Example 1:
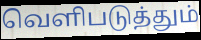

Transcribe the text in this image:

வெளிபடுத்தும்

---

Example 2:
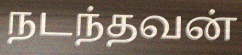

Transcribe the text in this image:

நடந்தவன்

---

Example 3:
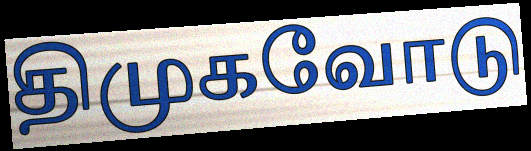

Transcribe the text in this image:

திமுகவோடு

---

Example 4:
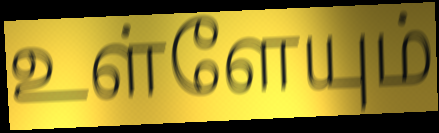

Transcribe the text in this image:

உள்ளேயும்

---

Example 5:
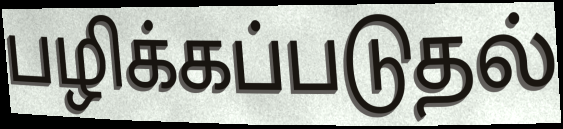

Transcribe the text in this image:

பழிக்கப்படுதல்